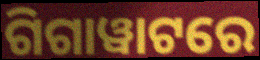
ଗିଗାୱାଟରେ